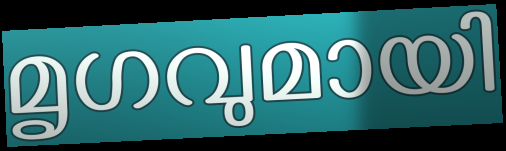
മൃഗവുമായി